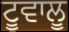
ਟੂਵਾਲੂ